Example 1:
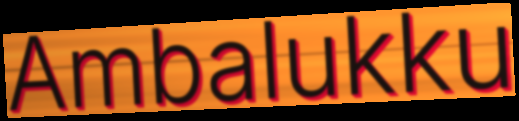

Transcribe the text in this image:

Ambalukku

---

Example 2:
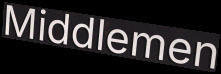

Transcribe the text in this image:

Middlemen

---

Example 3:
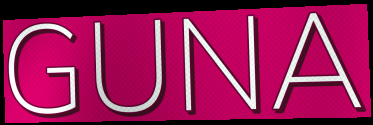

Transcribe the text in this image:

GUNA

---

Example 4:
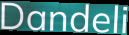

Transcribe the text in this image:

Dandeli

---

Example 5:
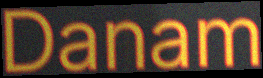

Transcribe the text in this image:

Danam